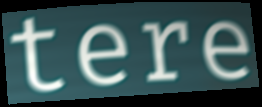
tere